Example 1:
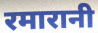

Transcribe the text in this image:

रमारानी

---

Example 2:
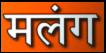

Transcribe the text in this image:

मलंग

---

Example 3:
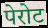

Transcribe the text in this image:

पेरोट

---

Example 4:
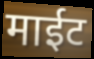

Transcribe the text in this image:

माईट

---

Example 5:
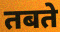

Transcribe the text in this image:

तबते